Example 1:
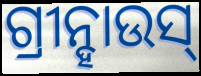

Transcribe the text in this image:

ଗ୍ରୀନ୍ହାଉସ୍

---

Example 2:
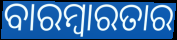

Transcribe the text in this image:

ବାରମ୍ବାରତାର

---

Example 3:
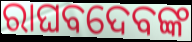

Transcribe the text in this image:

ରାଘବଦେବଙ୍କ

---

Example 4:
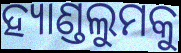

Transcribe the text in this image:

ହ୍ୟାଣ୍ଡଲୁମକୁ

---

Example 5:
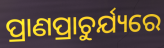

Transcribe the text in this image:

ପ୍ରାଣପ୍ରାଚୁର୍ଯ୍ୟରେ